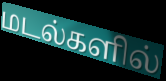
மடல்களில்